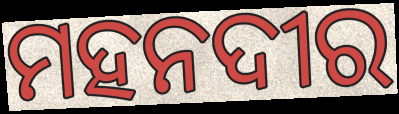
ମହନଦୀର